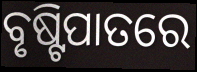
ବୃଷ୍ଟିପାତରେ